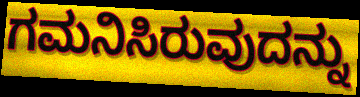
ಗಮನಿಸಿರುವುದನ್ನು